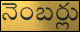
నెంబర్లు